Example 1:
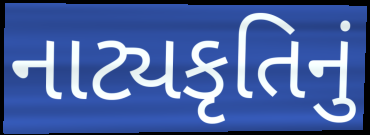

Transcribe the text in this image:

નાટ્યકૃતિનું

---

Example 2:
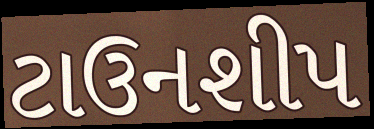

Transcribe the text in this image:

ટાઉનશીપ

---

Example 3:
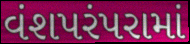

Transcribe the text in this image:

વંશપરંપરામાં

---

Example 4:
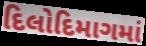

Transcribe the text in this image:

દિલોદિમાગમાં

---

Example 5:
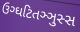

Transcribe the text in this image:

ઉગ્ઘટિતઞ્ઞુસ્સ